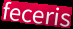
feceris